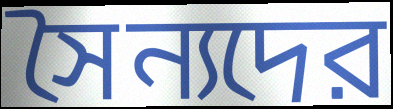
সৈন্যদের